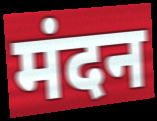
मंदन